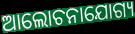
ଆଲୋଚନାଯୋଗ୍ୟ